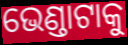
ଭେଣ୍ଡାଟାକୁ